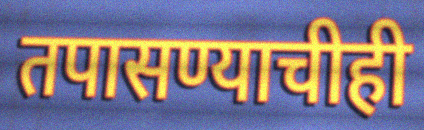
तपासण्याचीही